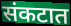
संकटात